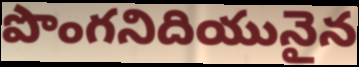
పొంగనిదియునైన